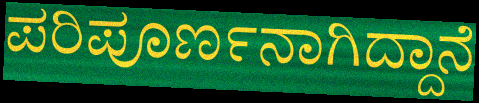
ಪರಿಪೂರ್ಣನಾಗಿದ್ದಾನೆ